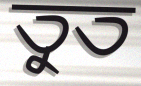
তুত